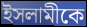
ইসলামীকে